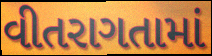
વીતરાગતામાં